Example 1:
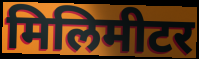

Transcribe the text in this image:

मिलिमीटर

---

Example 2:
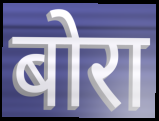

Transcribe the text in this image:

बोरा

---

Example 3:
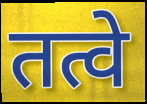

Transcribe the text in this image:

तत्वे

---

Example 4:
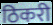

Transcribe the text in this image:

ठिकरी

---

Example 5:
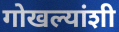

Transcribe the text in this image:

गोखल्यांशी